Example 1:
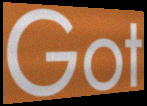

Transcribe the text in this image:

Got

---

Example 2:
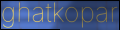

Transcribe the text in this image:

ghatkopar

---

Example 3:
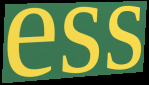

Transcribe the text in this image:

ess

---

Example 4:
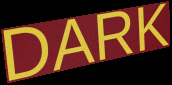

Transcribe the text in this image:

DARK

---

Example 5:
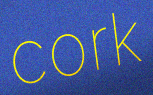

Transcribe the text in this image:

cork